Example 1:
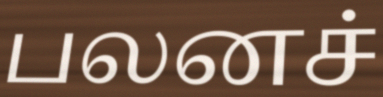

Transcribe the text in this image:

பலனச்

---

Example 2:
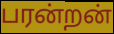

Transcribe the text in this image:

பரன்றன்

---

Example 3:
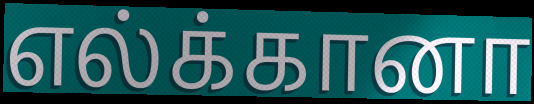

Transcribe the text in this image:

எல்க்கானா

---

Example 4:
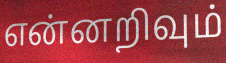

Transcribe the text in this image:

என்னறிவும்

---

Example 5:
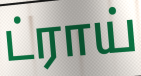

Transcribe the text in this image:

ட்ராய்